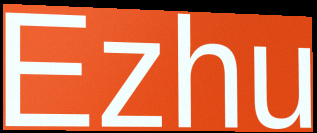
Ezhu